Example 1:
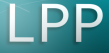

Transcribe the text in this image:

LPP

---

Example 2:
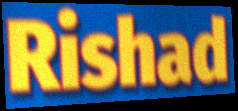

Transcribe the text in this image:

Rishad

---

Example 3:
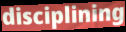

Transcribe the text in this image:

disciplining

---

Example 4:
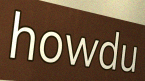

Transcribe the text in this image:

howdu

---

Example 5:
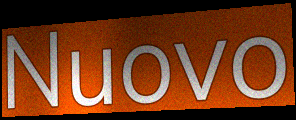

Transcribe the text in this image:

Nuovo